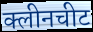
क्लीनचीट